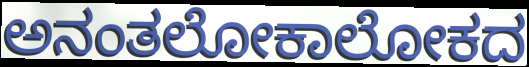
ಅನಂತಲೋಕಾಲೋಕದ